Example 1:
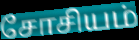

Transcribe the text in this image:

சோசியம்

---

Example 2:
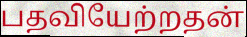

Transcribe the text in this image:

பதவியேற்றதன்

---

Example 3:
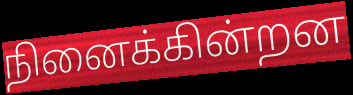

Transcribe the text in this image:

நினைக்கின்றன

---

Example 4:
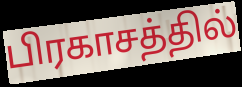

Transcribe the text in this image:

பிரகாசத்தில்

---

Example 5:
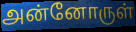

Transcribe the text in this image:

அன்னோருள்